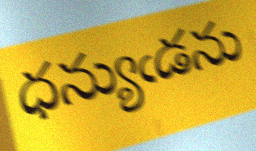
ధన్యుఁడను